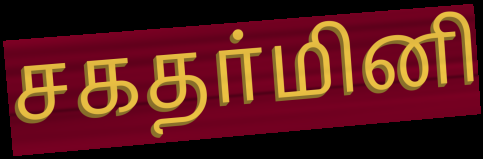
சகதர்மினி